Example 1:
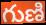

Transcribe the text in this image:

గుణి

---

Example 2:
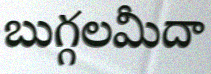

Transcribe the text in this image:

బుగ్గలమీదా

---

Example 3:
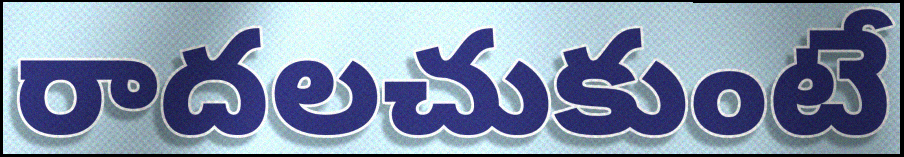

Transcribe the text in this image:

రాదలచుకుంటే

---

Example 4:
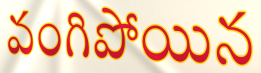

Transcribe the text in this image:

వంగిపోయిన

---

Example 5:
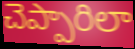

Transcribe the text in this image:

చెప్పారిలా